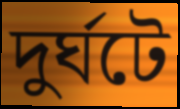
দুর্ঘটে